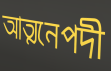
আত্মনেপদী